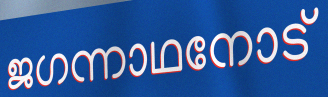
ജഗന്നാഥനോട്